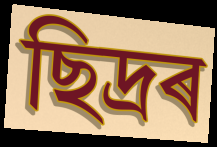
ছিদ্ৰৰ